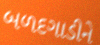
બળદગાડીને